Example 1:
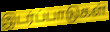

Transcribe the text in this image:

இடர்ப்பாடுகள்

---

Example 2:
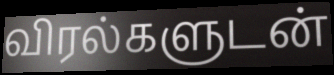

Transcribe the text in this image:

விரல்களுடன்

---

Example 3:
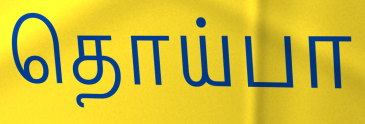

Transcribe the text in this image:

தொய்பா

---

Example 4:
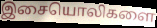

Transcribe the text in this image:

இசையொலிகளை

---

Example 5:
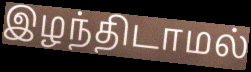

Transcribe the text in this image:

இழந்திடாமல்